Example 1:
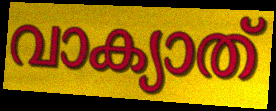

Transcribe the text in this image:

വാക്യാത്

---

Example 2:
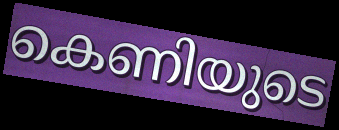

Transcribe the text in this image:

കെണിയുടെ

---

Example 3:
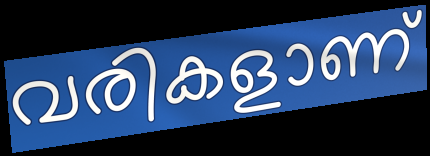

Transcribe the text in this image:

വരികളാണ്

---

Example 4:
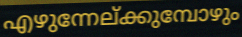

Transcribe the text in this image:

എഴുന്നേല്ക്കുമ്പോഴും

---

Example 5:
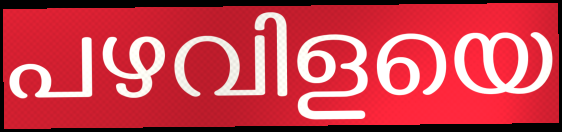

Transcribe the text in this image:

പഴവിളയെ